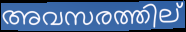
അവസരത്തില്